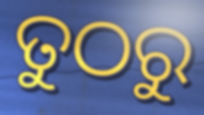
ତୁଠରୁ